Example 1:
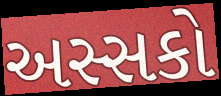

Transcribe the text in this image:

અસ્સકો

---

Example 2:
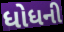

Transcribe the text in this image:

ધોધની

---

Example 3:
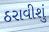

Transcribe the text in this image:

ઠરાવીશું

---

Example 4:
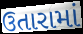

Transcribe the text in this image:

ઉતારામાં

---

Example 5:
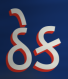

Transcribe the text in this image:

ઠેક